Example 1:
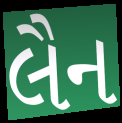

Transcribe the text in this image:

લૈન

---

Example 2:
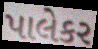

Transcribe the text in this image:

પાલેકર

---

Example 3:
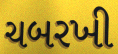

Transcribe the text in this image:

ચબરખી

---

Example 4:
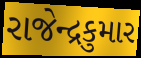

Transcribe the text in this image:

રાજેન્દ્રકુમાર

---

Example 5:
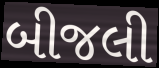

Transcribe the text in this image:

બીજલી